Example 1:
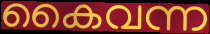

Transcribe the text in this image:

കൈവന്ന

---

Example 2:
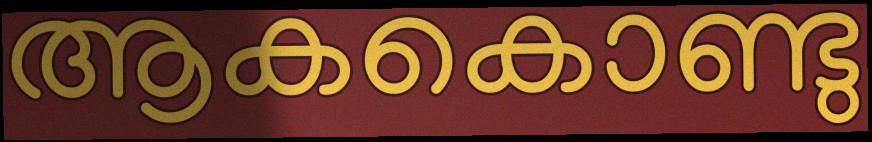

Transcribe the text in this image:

ആകകൊണ്ടു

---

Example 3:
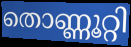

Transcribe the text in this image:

തൊണ്ണൂറ്റി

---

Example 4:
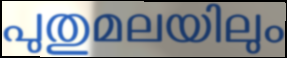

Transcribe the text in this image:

പുതുമലയിലും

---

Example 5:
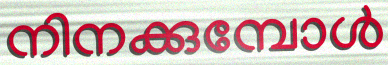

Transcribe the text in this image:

നിനക്കുമ്പോൾ